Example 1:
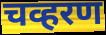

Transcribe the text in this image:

चव्हरण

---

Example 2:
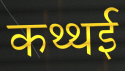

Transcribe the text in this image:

कथ्थई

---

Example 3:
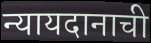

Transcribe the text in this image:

न्यायदानाची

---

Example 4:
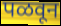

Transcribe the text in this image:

पळवून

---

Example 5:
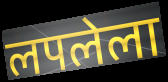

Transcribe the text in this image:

लपलेला